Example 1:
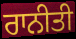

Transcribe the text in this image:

ਰਾਨੀਤੀ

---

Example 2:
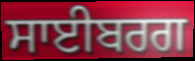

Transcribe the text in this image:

ਸਾਈਬਰਗ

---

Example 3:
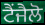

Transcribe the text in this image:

ਟੈਂਜੈਲੋ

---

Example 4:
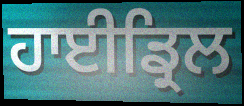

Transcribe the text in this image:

ਹਾਈਡ੍ਰਿਲ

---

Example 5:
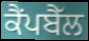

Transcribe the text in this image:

ਕੈਂਪਬੈੱਲ